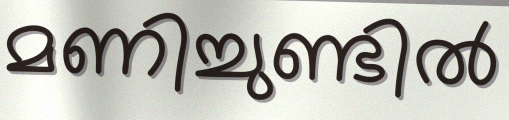
മണിച്ചുണ്ടിൽ